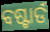
ବଷ୍ଟାର୍ଡ